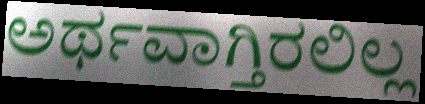
ಅರ್ಥವಾಗ್ತಿರಲಿಲ್ಲ